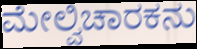
ಮೇಲ್ವಿಚಾರಕನು